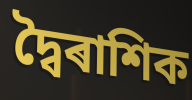
দ্বৈৰাশিক